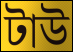
টাউ